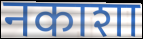
नकाशा